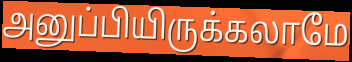
அனுப்பியிருக்கலாமே